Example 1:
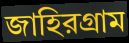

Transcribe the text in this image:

জাহিরগ্রাম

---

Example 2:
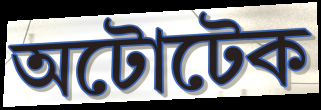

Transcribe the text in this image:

অটোটেক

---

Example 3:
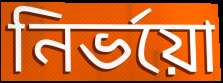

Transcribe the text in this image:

নির্ভয়ো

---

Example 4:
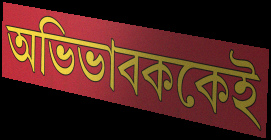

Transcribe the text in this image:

অভিভাবককেই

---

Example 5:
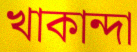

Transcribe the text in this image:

খাকান্দা